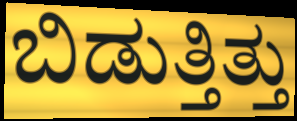
ಬಿಡುತ್ತಿತ್ತು